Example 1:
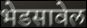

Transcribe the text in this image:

भेडसावेल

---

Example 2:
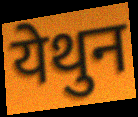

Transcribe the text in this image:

येथुन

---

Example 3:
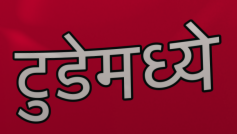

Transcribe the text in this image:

टुडेमध्ये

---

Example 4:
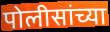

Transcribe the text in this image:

पोलीसांच्या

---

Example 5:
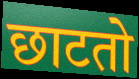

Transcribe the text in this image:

छाटतो